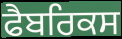
ਫੈਬਰਿਕਸ